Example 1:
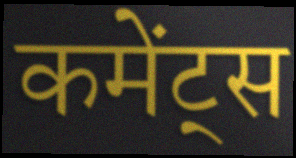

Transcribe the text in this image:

कमेंट्‌स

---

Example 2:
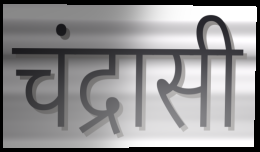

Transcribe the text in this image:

चंद्रासी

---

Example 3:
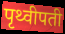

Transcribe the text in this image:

पृथ्वीपती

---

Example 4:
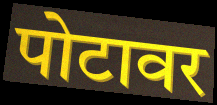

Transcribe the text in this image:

पोटावर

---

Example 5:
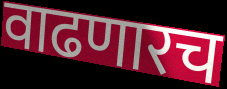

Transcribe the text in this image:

वाढणारच